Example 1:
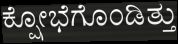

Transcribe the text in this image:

ಕ್ಷೋಭೆಗೊಂಡಿತ್ತು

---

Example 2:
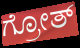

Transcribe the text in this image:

ಗ್ರೋತ್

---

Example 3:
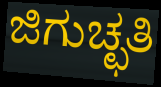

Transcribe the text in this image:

ಜಿಗುಚ್ಛತಿ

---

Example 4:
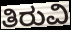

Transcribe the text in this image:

ತಿರುವಿ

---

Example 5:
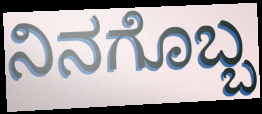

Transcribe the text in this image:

ನಿನಗೊಬ್ಬ